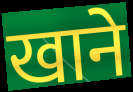
खाने